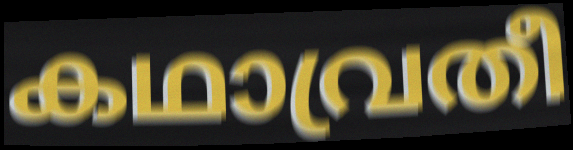
കഥാവ്രതീ